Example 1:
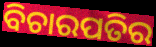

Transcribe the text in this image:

ବିଚାରପତିର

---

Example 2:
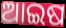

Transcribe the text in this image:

ଆଇଷ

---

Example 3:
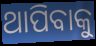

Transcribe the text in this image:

ଥାପିବାକୁ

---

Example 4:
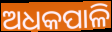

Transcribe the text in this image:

ଅଧକପାଳି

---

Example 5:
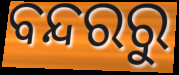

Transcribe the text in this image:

ବନ୍ଦରରୁ